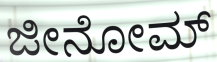
ಜೀನೋಮ್